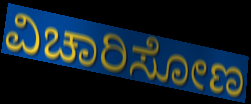
ವಿಚಾರಿಸೋಣ